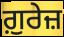
ਗ਼ੁਰੇਜ਼